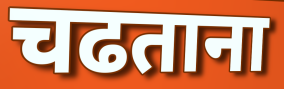
चढताना